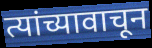
त्यांच्यावाचून